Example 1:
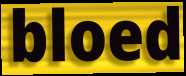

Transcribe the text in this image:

bloed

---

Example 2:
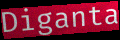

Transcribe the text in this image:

Diganta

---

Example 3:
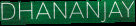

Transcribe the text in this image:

DHANANJAY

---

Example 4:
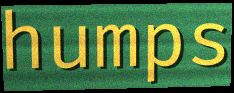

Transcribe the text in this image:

humps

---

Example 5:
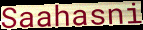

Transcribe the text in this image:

Saahasni